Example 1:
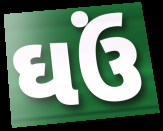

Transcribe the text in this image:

ઘઉં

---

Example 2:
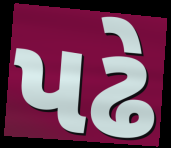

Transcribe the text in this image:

પઢે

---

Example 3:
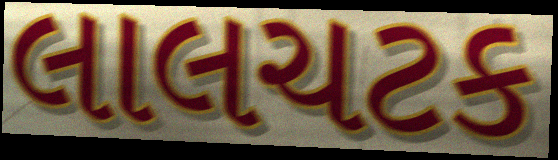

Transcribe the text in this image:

લાલચટક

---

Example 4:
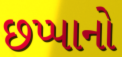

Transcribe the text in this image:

છપ્પાનો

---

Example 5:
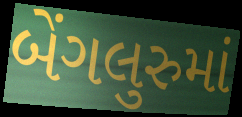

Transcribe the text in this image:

બેંગલુરુમાં